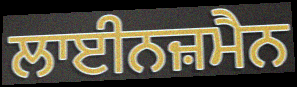
ਲਾਈਨਜ਼ਮੈਨ